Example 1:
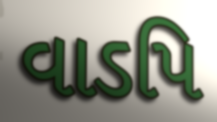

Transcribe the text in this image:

વાઽપિ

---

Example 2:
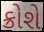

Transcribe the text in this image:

ક્રોશે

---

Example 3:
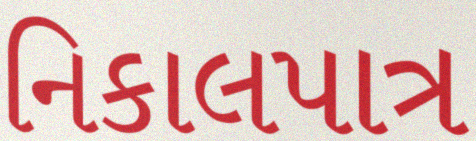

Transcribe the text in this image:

નિકાલપાત્ર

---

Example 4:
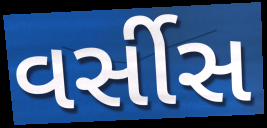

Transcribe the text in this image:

વર્સીસ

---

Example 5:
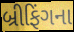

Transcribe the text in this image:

બ્રીફિંગના